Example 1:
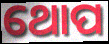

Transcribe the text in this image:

ଥୋପ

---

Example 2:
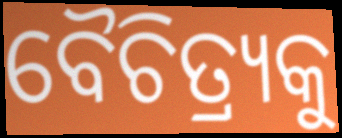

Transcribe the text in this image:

ବୈଚିତ୍ର୍ୟକୁ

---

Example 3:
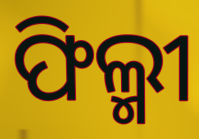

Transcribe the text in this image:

ଫିଲ୍ମୀ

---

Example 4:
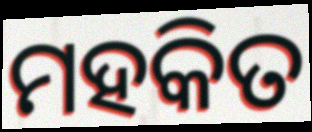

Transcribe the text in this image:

ମହକିତ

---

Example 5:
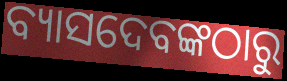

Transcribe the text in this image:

ବ୍ୟାସଦେବଙ୍କଠାରୁ